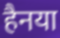
हैनया